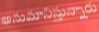
అనుమానిస్తున్నారు